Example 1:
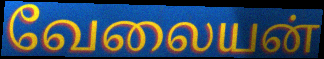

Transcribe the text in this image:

வேலையன்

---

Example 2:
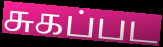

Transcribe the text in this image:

சுகப்பட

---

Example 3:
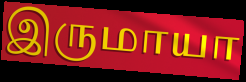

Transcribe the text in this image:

இருமாயா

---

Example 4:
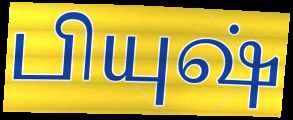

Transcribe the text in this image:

பியுஷ்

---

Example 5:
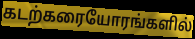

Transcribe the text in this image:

கடற்கரையோரங்களில்